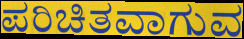
ಪರಿಚಿತವಾಗುವ